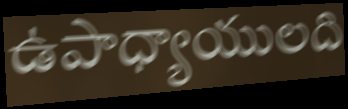
ఉపాధ్యాయులది